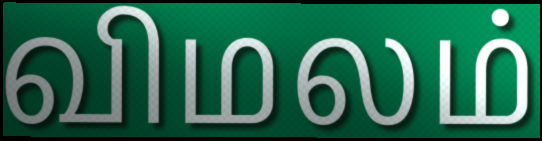
விமலம்